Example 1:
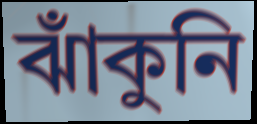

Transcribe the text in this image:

ঝাঁকুনি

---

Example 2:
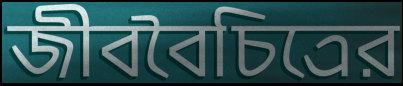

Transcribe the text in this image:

জীববৈচিত্রের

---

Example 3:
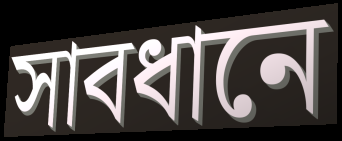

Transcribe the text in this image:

সাবধানে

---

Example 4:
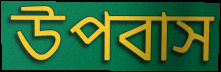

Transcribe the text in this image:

উপবাস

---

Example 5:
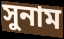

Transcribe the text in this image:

সুনাম